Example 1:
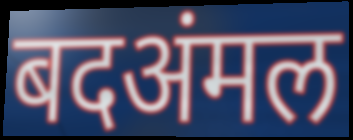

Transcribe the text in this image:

बदअंमल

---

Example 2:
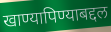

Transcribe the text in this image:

खाण्यापिण्याबद्दल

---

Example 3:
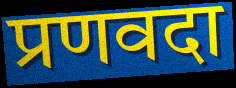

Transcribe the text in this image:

प्रणवदा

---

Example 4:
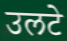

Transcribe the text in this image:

उलटे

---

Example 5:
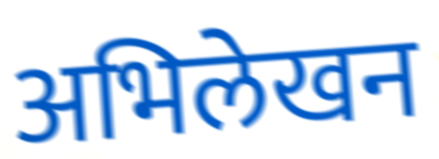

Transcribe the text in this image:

अभिलेखन